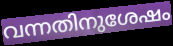
വന്നതിനുശേഷം